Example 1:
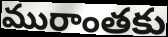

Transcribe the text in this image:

మురాంతకు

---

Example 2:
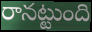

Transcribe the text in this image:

రానట్టుంది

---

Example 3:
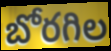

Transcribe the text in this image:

బోరగిల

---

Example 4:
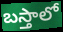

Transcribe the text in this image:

బస్తాలో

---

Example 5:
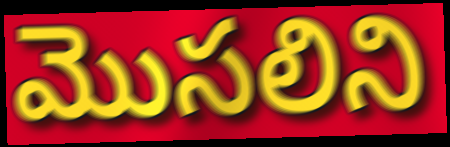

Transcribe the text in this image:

మొసలిని